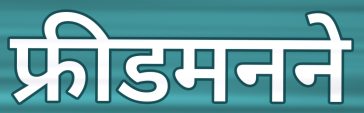
फ्रीडमनने